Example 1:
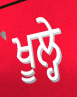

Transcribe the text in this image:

ਖੂਲ੍ਹ੍ਹੇ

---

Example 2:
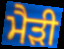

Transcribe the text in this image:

ਮੈੜੀ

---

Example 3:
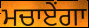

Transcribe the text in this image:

ਮਚਾਏਂਗਾ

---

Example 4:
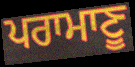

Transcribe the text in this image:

ਪਰਾਮਾਣੂ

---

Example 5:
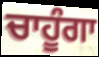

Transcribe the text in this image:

ਚਾਹੂੰਗਾ